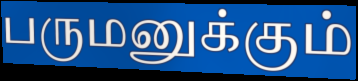
பருமனுக்கும்